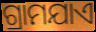
ଗ୍ରାମଯାଏ